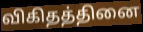
விகிதத்தினை